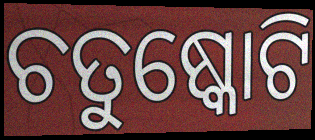
ଚତୁଷ୍କୋଟି